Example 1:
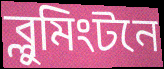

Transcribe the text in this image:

ব্লুমিংটনে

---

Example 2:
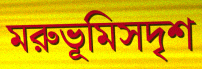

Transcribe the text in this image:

মরুভূমিসদৃশ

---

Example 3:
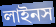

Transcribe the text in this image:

লাইনস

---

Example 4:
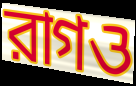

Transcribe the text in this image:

রাগও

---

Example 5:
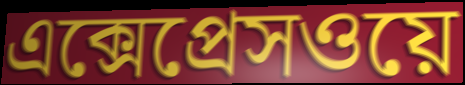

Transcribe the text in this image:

এক্সেপ্রেসওয়ে